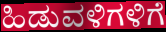
ಹಿಡುವಳಿಗಳಿಗೆ